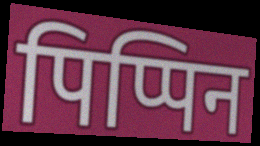
पिप्पिन